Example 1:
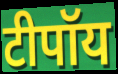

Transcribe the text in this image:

टीपॉय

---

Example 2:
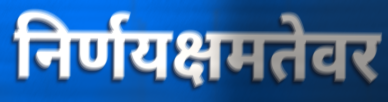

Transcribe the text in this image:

निर्णयक्षमतेवर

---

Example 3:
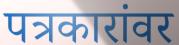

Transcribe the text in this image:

पत्रकारांवर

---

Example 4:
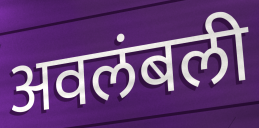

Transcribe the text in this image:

अवलंबली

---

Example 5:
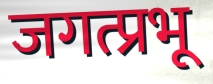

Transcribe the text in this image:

जगत्प्रभू